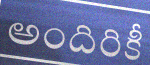
అందిరికీ